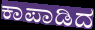
ಕಾಪಾಡಿದ